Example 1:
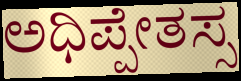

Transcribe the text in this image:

ಅಧಿಪ್ಪೇತಸ್ಸ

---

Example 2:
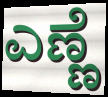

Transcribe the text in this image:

ಎಣ್ಣೆ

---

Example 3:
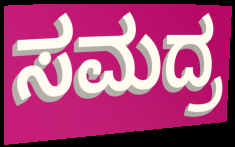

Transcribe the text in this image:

ಸಮದ್ರ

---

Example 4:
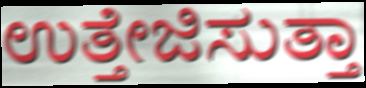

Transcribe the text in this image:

ಉತ್ತೇಜಿಸುತ್ತಾ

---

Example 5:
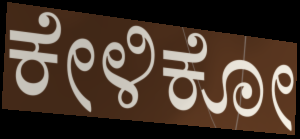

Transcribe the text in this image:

ಕೇಳಿಕೋ